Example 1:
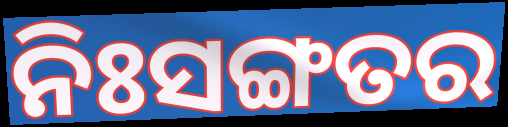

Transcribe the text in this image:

ନିଃସଙ୍ଗତର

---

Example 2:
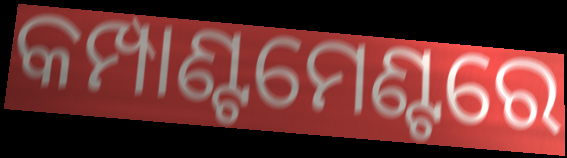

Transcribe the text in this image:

କମ୍ପାଣ୍ଟମେଣ୍ଟରେ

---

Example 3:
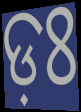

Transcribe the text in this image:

ଡ଼ଃ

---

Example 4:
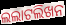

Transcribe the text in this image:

ଲଲାଟଲିଖନ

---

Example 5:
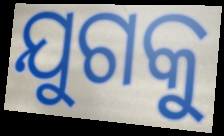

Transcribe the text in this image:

ଯୁଗକୁ